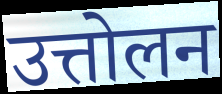
उत्तोलन